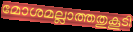
മോശമല്ലാത്തതുകൂടി